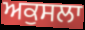
ਅਕੁਸਲਾ